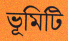
ভূমিটি